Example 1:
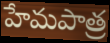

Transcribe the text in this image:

హేమపాత్ర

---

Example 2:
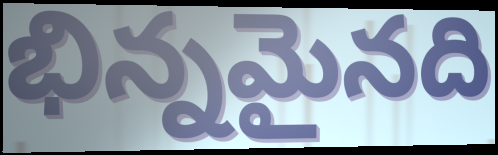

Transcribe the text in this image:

భిన్నమైనది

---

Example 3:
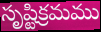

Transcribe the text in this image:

సృష్టిక్రమము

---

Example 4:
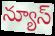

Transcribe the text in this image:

న్యూస్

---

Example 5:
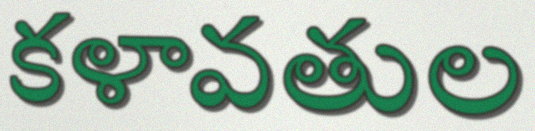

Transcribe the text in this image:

కళావతుల